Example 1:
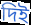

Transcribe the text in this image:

দিই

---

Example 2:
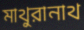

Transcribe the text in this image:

মাথুরানাথ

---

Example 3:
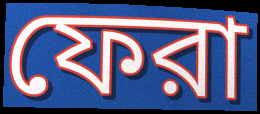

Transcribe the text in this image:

ফেরা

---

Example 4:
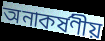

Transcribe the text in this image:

অনাকর্ষণীয়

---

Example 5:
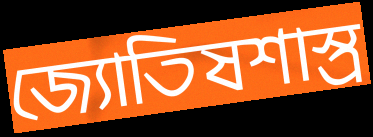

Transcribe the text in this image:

জ্যোতিষশাস্ত্র